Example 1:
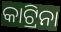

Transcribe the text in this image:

କାଟ୍ରିନା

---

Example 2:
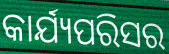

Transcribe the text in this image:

କାର୍ଯ୍ୟପରିସର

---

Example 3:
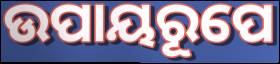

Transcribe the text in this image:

ଉପାୟରୂପେ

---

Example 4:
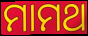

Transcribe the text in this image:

ମାମଥ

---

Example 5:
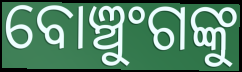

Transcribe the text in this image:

ବୋଞ୍ଚୁଂଗଙ୍କୁ